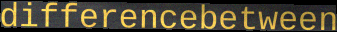
differencebetween